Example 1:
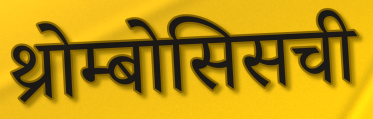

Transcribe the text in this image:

थ्रोम्बोसिसची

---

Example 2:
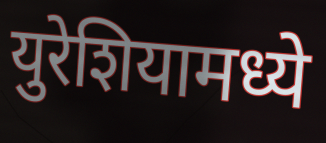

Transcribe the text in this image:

युरेशियामध्ये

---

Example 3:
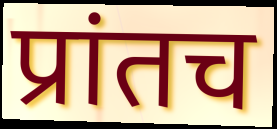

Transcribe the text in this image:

प्रांतच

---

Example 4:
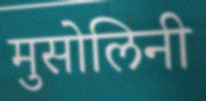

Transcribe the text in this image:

मुसोलिनी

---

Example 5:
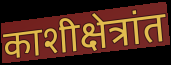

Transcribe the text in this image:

काशीक्षेत्रांत